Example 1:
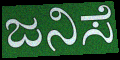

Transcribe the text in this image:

ಜನಿಸೆ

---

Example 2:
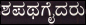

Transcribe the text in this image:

ಶಪಥಗೈದರು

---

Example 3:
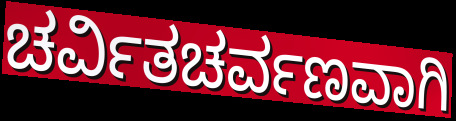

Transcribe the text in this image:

ಚರ್ವಿತಚರ್ವಣವಾಗಿ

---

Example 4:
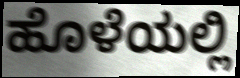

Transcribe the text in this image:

ಹೊಳೆಯಲ್ಲಿ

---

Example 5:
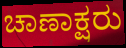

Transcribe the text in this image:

ಚಾಣಾಕ್ಷರು